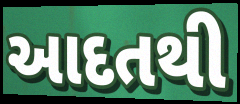
આદતથી